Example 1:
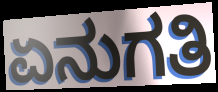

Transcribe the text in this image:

ಏನುಗತಿ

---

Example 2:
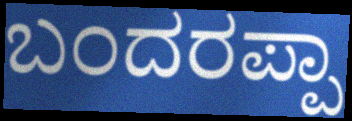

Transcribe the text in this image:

ಬಂದರಪ್ಪಾ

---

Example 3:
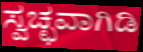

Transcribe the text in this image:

ಸ್ವಚ್ಛವಾಗಿಡಿ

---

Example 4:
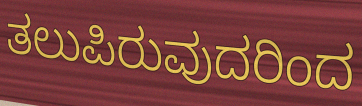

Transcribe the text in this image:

ತಲುಪಿರುವುದರಿಂದ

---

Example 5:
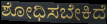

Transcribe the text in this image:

ಶೋಧಿಸಬೇಕಿದೆ